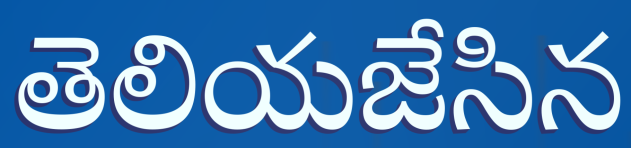
తెలియజేసిన